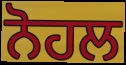
ਨੋਹਲ